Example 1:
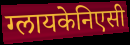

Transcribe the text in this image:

ग्लायकेनिएसी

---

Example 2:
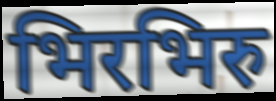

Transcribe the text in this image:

भिरभिरु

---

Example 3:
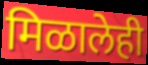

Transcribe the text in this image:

मिळालेही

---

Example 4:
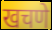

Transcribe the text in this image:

खचणे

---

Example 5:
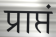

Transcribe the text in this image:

प्राप्तं